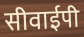
सीवाईपी